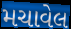
મચાવેલ